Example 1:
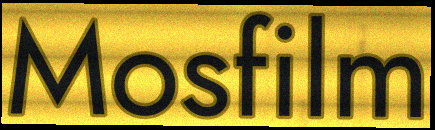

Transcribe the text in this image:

Mosfilm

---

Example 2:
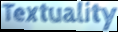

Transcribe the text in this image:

Textuality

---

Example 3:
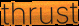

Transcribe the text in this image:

thrust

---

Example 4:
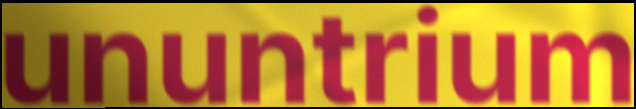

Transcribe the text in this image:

ununtrium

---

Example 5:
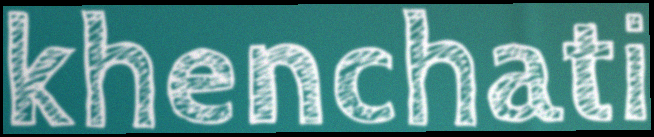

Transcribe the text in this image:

khenchati